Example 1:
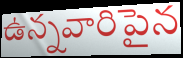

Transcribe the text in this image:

ఉన్నవారిపైన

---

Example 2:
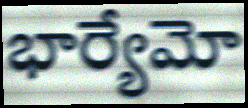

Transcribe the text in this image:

భార్యేమో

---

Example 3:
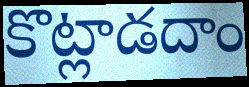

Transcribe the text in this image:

కొట్లాడదాం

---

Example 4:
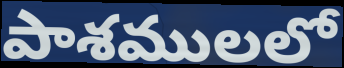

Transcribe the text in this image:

పాశములలో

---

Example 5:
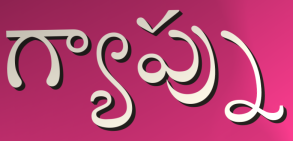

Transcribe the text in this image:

గ్యాప్ను